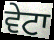
ਵੇਟਾ